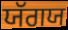
ਯੱਗਯ